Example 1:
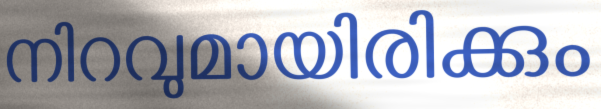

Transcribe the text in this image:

നിറവുമായിരിക്കും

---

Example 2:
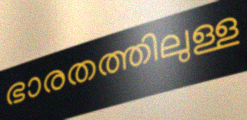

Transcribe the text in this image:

ഭാരതത്തിലുള്ള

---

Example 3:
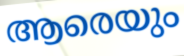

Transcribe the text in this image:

ആരെയും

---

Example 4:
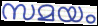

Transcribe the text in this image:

സമയം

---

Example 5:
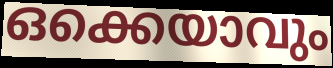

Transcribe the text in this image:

ഒക്കെയാവും